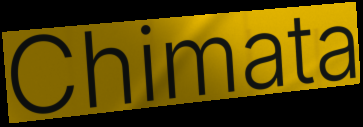
Chimata